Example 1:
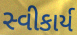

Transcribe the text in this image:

સ્વીકાર્ય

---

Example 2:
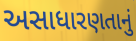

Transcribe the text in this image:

અસાધારણતાનું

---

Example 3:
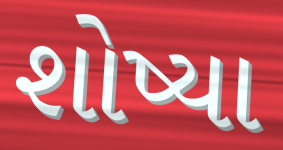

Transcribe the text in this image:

શોષ્યા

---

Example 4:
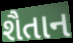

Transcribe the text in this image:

શૈતાન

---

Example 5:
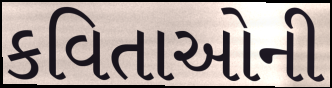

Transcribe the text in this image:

કવિતાઓની